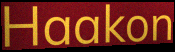
Haakon